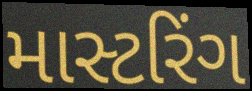
માસ્ટરિંગ